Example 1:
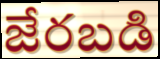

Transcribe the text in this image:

జేరబడి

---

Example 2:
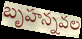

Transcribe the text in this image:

బృహన్నవల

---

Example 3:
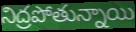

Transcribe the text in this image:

నిద్రపోతున్నాయి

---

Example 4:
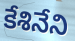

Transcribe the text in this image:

కేశినేని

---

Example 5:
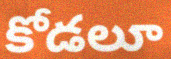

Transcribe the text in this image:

కోడలూ